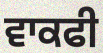
ਵਾਕਫੀ